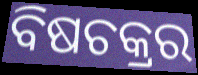
ବିଷଚକ୍ରର